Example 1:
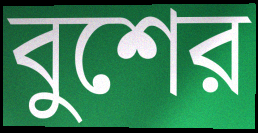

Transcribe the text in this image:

বুশের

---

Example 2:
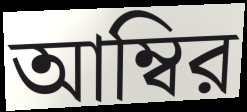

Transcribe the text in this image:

আম্বির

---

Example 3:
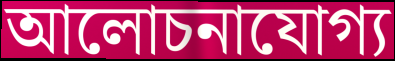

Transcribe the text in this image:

আলোচনাযোগ্য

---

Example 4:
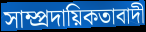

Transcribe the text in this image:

সাম্প্রদায়িকতাবাদী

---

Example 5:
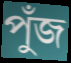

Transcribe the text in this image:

পুঁজ